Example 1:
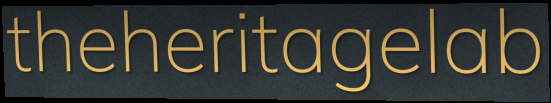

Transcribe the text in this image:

theheritagelab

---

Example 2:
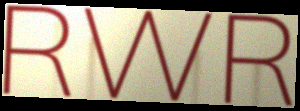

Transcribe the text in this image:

RWR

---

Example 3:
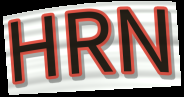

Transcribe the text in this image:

HRN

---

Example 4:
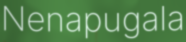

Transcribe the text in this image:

Nenapugala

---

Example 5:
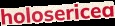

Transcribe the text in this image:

holosericea